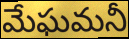
మేఘమనీ